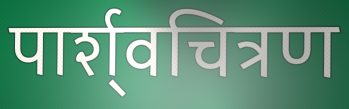
पार्श्वचित्रण